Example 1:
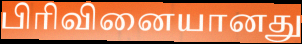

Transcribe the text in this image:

பிரிவினையானது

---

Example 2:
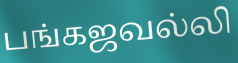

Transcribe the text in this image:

பங்கஜவல்லி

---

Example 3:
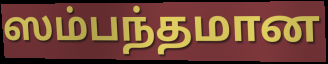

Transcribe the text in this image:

ஸம்பந்தமான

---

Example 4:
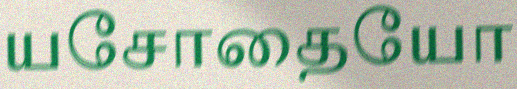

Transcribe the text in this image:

யசோதையோ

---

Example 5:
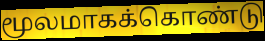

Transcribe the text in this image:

மூலமாகக்கொண்டு